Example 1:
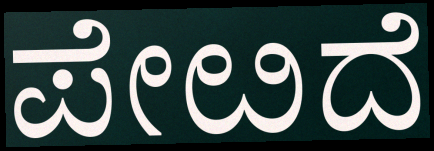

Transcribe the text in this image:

ಪೇೞದೆ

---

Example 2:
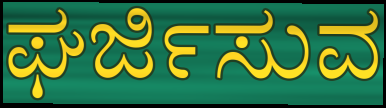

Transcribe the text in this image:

ಘರ್ಜಿಸುವ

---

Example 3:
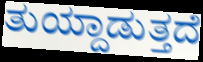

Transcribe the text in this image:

ತುಯ್ದಾಡುತ್ತದೆ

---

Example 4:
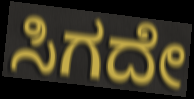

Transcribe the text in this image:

ಸಿಗದೇ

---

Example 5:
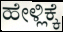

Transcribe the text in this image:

ಹೇಳ್ಲಿಕ್ಕೆ